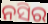
ନସିର